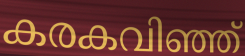
കരകവിഞ്ഞ്